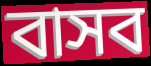
বাসব